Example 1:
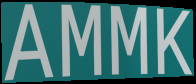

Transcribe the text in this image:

AMMK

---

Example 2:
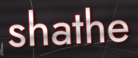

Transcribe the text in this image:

shathe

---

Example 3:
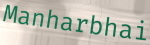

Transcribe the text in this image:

Manharbhai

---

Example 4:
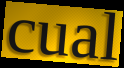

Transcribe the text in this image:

cual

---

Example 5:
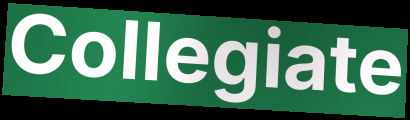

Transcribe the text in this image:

Collegiate